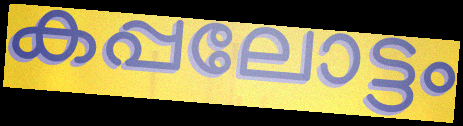
കപ്പലോട്ടം